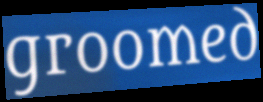
groomed